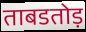
ताबडतोड़